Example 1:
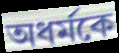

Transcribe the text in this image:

অধর্মকে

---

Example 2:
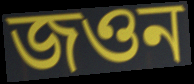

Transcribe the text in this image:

জওন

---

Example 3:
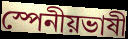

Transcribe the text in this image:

স্পেনীয়ভাষী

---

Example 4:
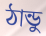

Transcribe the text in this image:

ঠান্ডু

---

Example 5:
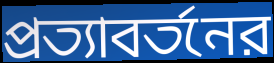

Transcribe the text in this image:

প্রত্যাবর্তনের